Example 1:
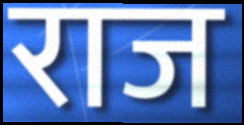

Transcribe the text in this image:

राज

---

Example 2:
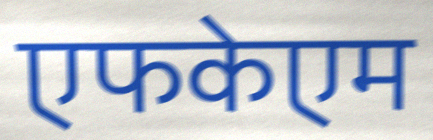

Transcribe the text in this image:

एफकेएम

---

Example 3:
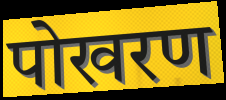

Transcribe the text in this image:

पोखरण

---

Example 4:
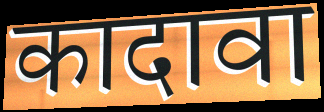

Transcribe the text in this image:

कादावा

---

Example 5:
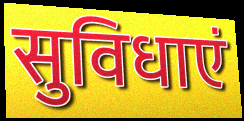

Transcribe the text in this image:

सुविधाएं